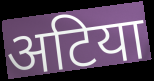
अटिया